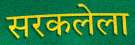
सरकलेला